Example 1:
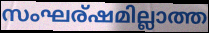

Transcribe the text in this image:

സംഘര്ഷമില്ലാത്ത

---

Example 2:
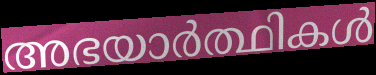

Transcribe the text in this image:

അഭയാർത്ഥികൾ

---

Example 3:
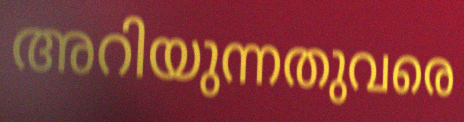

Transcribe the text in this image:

അറിയുന്നതുവരെ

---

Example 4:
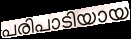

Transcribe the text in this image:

പരിപാടിയായ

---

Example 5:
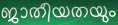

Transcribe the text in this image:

ജാതീയതയും